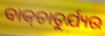
ବାକ୍‍ଚାତୁର୍ଯ୍ୟର